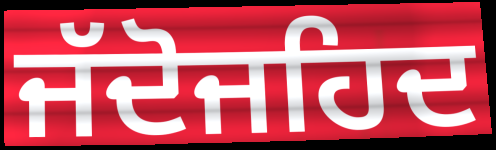
ਜੱਦੋਜਹਿਦ